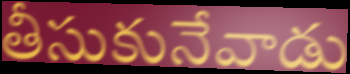
తీసుకునేవాడు